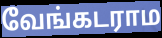
வேங்கடராம